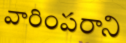
వారింపరాని